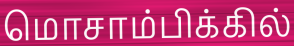
மொசாம்பிக்கில்